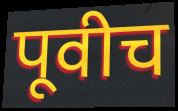
पूवीच